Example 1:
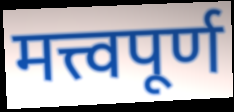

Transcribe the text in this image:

मत्त्वपूर्ण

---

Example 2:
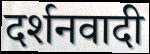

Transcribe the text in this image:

दर्शनवादी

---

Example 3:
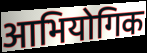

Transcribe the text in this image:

आभियोगिक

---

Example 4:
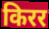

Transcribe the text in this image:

किरर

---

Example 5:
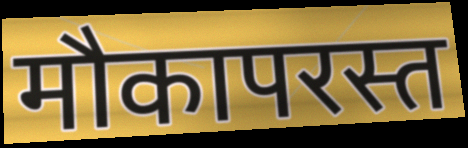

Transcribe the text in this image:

मौकापरस्त